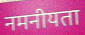
नमनीयता